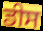
ਡੀਸ